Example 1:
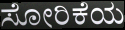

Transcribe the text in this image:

ಸೋರಿಕೆಯ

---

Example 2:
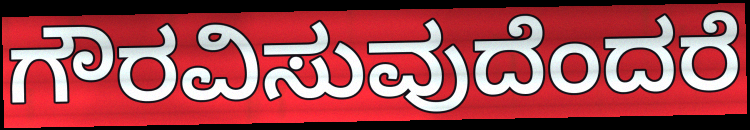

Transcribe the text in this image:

ಗೌರವಿಸುವುದೆಂದರೆ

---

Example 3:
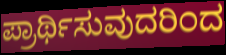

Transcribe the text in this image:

ಪ್ರಾರ್ಥಿಸುವುದರಿಂದ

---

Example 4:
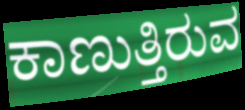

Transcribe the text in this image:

ಕಾಣುತ್ತಿರುವ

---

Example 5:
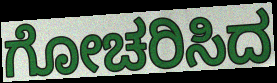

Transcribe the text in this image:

ಗೋಚರಿಸಿದ